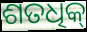
ଶତଧିକ୍